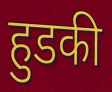
हुडकी